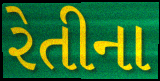
રેતીના